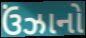
ઉંઝાનો